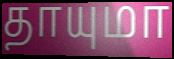
தாயுமா